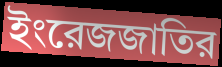
ইংরেজজাতির